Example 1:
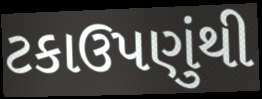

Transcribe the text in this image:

ટકાઉપણુંથી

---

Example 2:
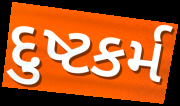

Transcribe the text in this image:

દુષ્ટકર્મ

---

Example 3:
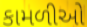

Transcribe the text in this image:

કામળીઓ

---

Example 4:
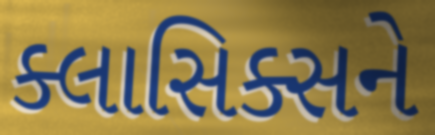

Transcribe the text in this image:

ક્લાસિક્સને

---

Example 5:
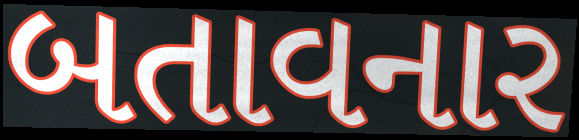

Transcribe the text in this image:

બતાવનાર